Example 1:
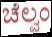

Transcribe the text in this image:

ಚೆಲ್ವಂ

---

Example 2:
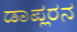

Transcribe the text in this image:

ಡಾಪ್ಲರನ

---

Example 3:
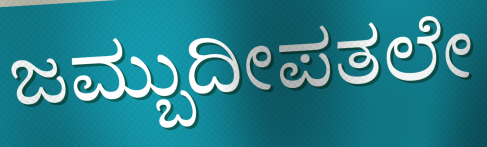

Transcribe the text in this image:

ಜಮ್ಬುದೀಪತಲೇ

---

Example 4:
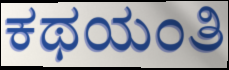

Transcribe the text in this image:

ಕಥಯಂತಿ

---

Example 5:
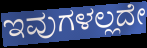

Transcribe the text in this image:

ಇವುಗಳಲ್ಲದೇ